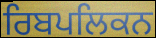
ਰਿਬਪਲਿਕਨ